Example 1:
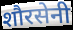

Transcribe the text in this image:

शौरसेनी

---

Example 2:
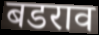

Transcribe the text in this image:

बडराव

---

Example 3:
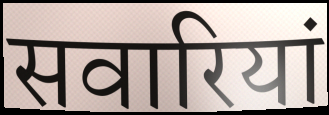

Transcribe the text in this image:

सवारियां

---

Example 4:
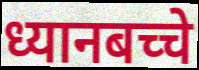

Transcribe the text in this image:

ध्यानबच्चे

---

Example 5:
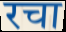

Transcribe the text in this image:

रचा